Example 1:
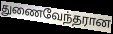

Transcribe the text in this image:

துணைவேந்தரான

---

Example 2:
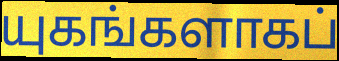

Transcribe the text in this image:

யுகங்களாகப்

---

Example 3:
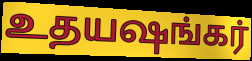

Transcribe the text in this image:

உதயஷங்கர்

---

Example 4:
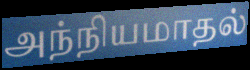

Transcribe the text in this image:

அந்நியமாதல்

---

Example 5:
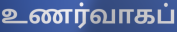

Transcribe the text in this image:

உணர்வாகப்